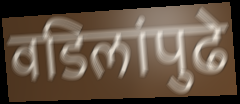
वडिलांपुढे